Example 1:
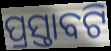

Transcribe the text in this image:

ପ୍ରସ୍ତାବଟି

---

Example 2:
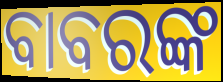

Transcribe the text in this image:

ବାବରଙ୍କ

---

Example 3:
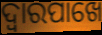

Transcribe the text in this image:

ଦ୍ୱାରପାଖେ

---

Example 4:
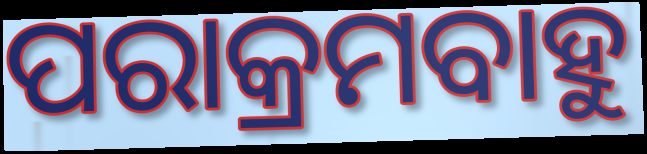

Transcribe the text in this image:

ପରାକ୍ରମବାହୁ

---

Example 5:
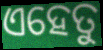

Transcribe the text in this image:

ଏହେତୁ